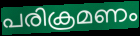
പരിക്രമണം